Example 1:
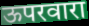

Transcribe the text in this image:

ऊपरवारा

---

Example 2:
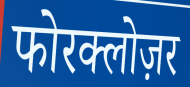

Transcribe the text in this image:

फोरक्लोज़र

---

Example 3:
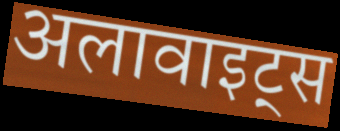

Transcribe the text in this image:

अलावाइट्स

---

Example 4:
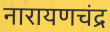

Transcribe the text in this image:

नारायणचंद्र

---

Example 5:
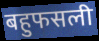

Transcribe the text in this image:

बहुफसली